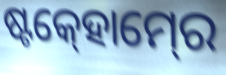
ଷ୍ଟକ୍‍ହୋମ୍‍ରେ